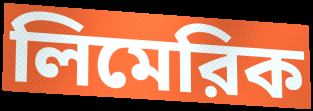
লিমেরিক